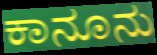
ಕಾನೂನು